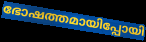
ഭോഷത്തമായിപ്പോയി